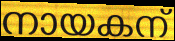
നായകന്